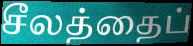
சீலத்தைப்